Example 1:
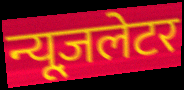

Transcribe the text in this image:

न्यूज़लेटर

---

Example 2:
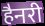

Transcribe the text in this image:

हैनरी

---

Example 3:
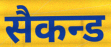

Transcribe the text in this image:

सैकन्ड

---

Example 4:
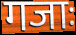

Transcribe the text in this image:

गजाः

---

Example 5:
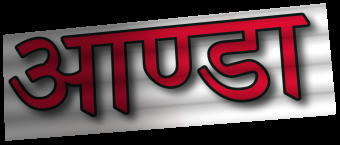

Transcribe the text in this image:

आण्डा